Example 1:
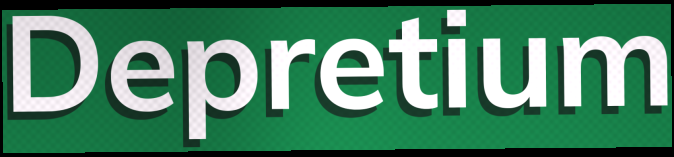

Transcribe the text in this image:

Depretium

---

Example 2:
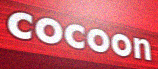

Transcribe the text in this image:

cocoon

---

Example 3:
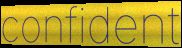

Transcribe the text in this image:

confident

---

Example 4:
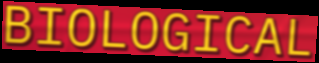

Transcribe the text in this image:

BIOLOGICAL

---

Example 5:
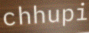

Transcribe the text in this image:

chhupi